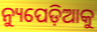
ନ୍ୟୁପେଡ଼ିଆକୁ